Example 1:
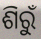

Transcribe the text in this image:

ଶିରୁଁ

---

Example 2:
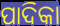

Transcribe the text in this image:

ପାଦିକା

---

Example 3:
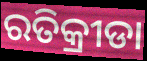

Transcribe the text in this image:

ରତିକ୍ରୀଡା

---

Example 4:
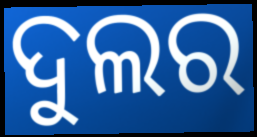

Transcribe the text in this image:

ଦୁଲର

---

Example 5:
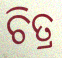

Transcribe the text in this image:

ଚିତ୍ର